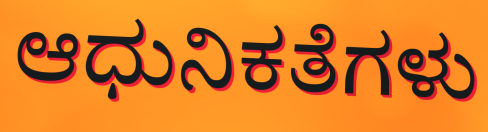
ಆಧುನಿಕತೆಗಳು